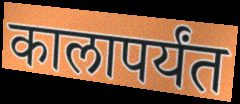
कालापर्यंत